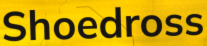
Shoedross